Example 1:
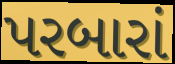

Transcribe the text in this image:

પરબારાં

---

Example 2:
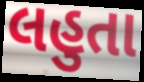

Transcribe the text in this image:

લહુતા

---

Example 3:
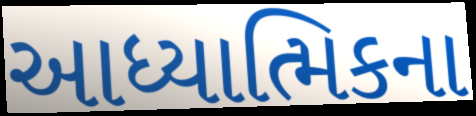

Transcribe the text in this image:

આધ્યાત્મિકના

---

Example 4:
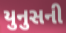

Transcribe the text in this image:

યુનુસની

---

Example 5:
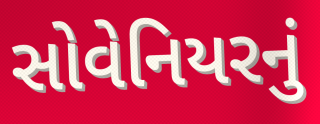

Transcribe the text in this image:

સોવેનિયરનું